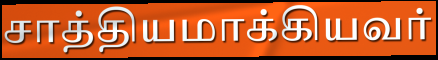
சாத்தியமாக்கியவர்